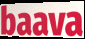
baava